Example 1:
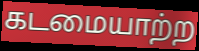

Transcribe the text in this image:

கடமையாற்ற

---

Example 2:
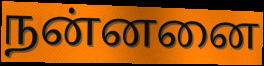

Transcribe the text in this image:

நன்னனை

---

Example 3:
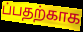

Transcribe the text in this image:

ப்பதற்காக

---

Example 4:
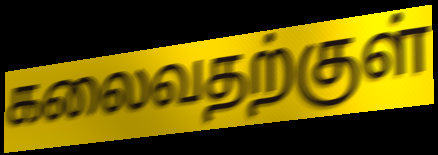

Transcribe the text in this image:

கலைவதற்குள்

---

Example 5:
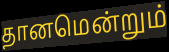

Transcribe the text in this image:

தானமென்றும்